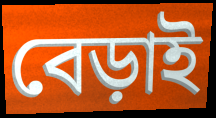
বেড়াই